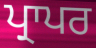
ਪ੍ਰਾਪਰ